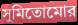
সুমিতোমোর